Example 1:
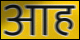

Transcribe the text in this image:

आह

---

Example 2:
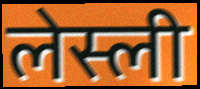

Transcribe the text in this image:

लेस्ली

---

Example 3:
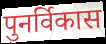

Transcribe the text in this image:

पुनर्विकास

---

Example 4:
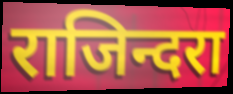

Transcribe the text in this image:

राजिन्दरा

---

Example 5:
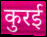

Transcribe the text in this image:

कुरई